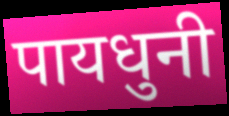
पायधुनी